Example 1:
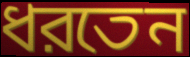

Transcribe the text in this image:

ধরতেন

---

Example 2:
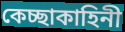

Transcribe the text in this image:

কেচ্ছাকাহিনী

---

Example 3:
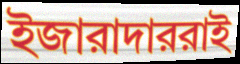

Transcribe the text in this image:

ইজারাদাররাই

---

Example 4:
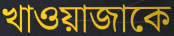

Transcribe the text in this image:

খাওয়াজাকে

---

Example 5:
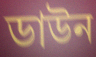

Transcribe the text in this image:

ডাউন